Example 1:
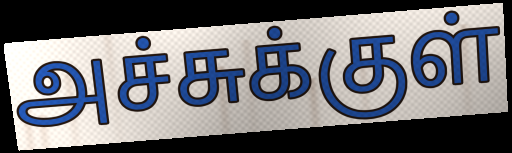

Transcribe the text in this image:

அச்சுக்குள்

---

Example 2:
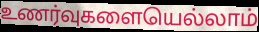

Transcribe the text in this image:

உணர்வுகளையெல்லாம்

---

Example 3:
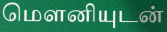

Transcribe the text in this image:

மௌனியுடன்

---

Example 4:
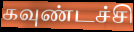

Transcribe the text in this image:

கவுண்டச்சி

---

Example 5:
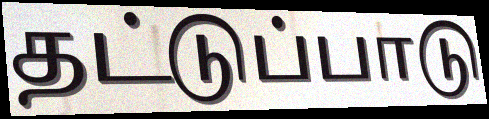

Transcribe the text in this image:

தட்டுப்பாடு